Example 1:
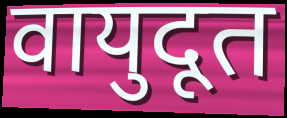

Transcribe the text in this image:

वायुदूत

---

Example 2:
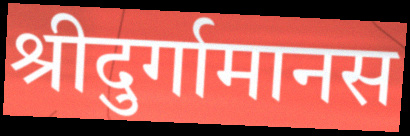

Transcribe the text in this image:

श्रीदुर्गामानस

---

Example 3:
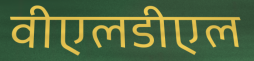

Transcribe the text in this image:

वीएलडीएल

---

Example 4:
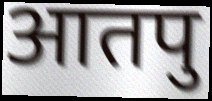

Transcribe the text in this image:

आतपु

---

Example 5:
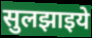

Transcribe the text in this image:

सुलझाइये